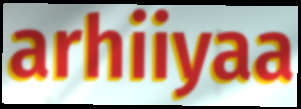
arhiiyaa